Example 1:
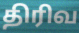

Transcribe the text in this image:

திரிவ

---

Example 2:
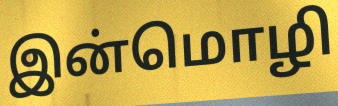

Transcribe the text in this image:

இன்மொழி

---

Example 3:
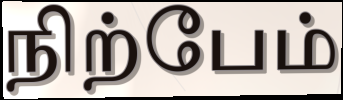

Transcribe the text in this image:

நிற்பேம்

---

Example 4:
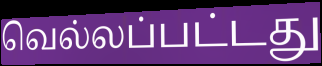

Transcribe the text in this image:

வெல்லப்பட்டது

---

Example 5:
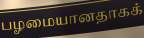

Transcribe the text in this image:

பழமையானதாகக்